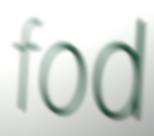
fod